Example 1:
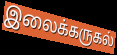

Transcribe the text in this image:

இலைக்கருகல்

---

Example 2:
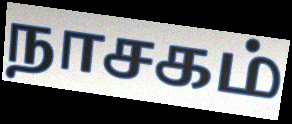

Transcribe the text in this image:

நாசகம்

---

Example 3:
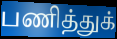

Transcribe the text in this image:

பணித்துக்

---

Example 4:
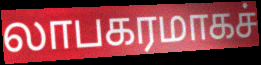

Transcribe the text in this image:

லாபகரமாகச்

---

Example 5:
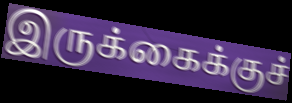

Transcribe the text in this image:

இருக்கைக்குச்